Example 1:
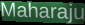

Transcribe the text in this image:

Maharaju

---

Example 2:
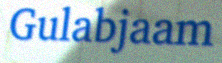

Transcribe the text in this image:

Gulabjaam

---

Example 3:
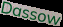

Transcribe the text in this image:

Dassow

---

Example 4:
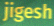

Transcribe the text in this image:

jigesh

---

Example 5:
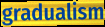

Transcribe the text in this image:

gradualism